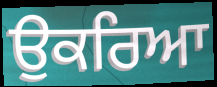
ਉਕਰਿਆ